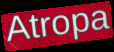
Atropa